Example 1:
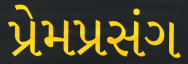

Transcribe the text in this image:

પ્રેમપ્રસંગ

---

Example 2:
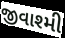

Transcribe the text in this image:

જીવાશ્મી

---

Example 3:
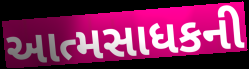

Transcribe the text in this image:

આત્મસાધકની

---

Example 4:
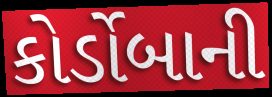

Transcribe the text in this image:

કોર્ડોબાની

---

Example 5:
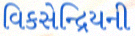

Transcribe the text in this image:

વિકસેન્દ્રિયની